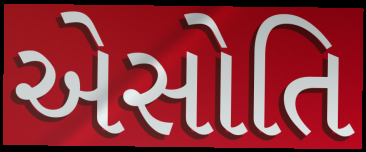
એસોતિ